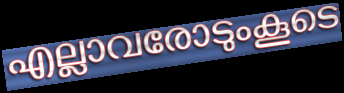
എല്ലാവരോടുംകൂടെ